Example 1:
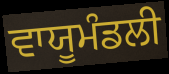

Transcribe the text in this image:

ਵਾਯੂਮੰਡਲੀ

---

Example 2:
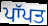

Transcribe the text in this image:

ਪਾੱਪਤ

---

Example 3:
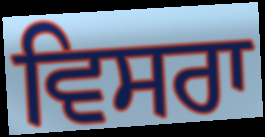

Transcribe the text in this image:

ਵਿਸਰਾ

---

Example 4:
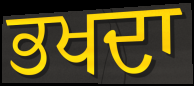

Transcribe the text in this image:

ਭਖਦਾ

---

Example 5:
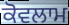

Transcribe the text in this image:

ਕੋਵਲਾਮ